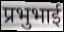
प्रभुभाई